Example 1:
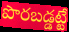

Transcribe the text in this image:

పొరబడ్డట్టే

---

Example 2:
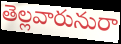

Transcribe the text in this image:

తెల్లవారునురా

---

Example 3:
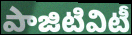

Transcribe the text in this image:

పాజిటివిటీ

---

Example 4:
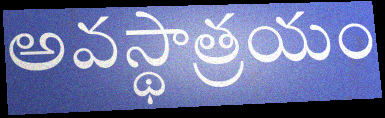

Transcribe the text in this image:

అవస్థాత్రయం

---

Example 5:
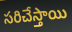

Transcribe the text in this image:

సరిచేస్తాయి